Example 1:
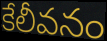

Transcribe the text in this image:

కేలీవనం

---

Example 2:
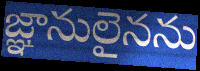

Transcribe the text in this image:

జ్ఞానులైనను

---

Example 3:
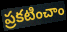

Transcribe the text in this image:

ప్రకటించాం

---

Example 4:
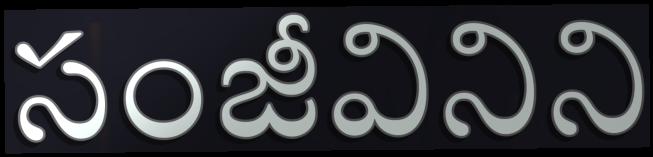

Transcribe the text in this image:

సంజీవినిని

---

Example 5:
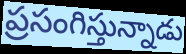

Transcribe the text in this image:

ప్రసంగిస్తున్నాడు